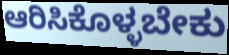
ಆರಿಸಿಕೊಳ್ಳಬೇಕು